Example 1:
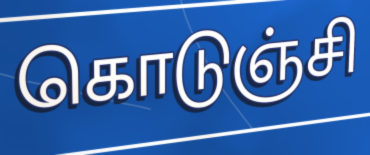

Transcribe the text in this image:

கொடுஞ்சி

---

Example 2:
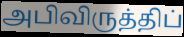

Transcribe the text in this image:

அபிவிருத்திப்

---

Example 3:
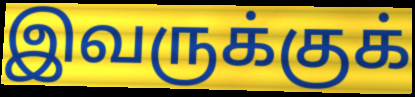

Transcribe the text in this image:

இவருக்குக்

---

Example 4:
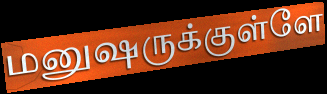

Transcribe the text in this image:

மனுஷருக்குள்ளே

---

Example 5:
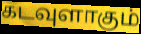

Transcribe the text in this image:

கடவுளாகும்